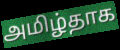
அமிழ்தாக